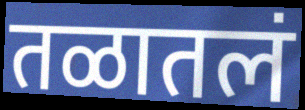
तळातलं